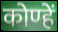
कोण्हें